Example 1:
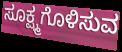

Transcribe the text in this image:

ಸೂಕ್ಷ್ಮಗೊಳಿಸುವ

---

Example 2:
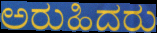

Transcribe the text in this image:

ಅರುಹಿದರು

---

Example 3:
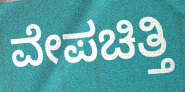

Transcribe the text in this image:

ವೇಪಚಿತ್ತಿ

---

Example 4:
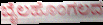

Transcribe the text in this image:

ಬೈಲಹೊಂಗಲದ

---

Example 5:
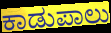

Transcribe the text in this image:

ಕಾಡುಪಾಲು